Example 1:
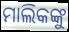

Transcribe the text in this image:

ମାଲିକଙ୍କୁ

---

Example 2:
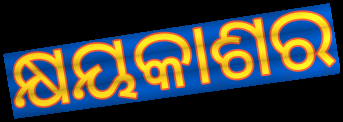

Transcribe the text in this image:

କ୍ଷୟକାଶର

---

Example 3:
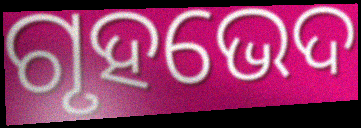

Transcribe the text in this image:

ଗୃହଭେଦ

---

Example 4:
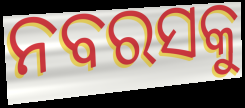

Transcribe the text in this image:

ନବରସକୁ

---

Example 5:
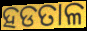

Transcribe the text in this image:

ହଡତାଳ